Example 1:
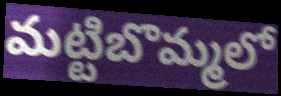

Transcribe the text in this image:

మట్టిబొమ్మలో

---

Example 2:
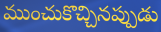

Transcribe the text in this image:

ముంచుకొచ్చినప్పుడు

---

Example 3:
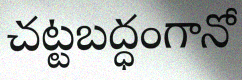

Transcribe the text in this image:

చట్టబద్ధంగానో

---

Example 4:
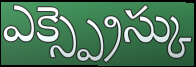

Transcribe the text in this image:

ఎక్స్ప్రెస్కు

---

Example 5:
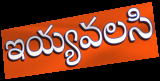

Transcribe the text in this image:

ఇయ్యవలసి